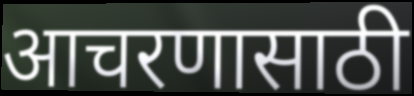
आचरणासाठी